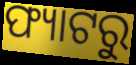
ଫ୍ୟାଟରୁ